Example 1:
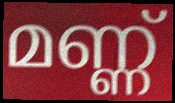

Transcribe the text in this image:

മണ്ണ്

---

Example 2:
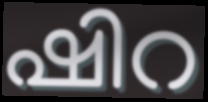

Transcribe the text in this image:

ഷിറ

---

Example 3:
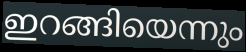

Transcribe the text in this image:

ഇറങ്ങിയെന്നും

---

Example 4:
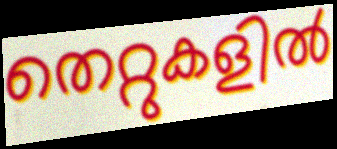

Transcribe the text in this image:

തെറ്റുകളിൽ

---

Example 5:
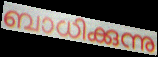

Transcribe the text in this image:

ബാധിക്കുന്നു